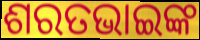
ଶରତଭାଇଙ୍କ